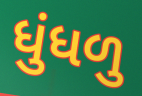
ધુંધળુ